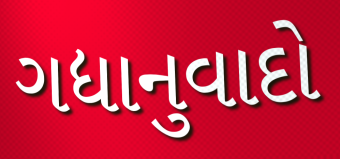
ગદ્યાનુવાદો